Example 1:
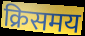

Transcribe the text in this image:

क्रिसमय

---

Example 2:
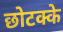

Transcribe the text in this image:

छोटक्के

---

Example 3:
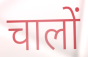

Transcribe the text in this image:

चालों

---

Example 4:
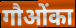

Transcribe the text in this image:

गौओंका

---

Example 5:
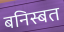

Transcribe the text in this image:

बनिस्बत